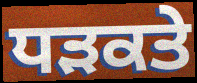
ਧੜਕਤੇ